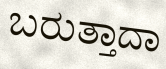
ಬರುತ್ತಾದಾ